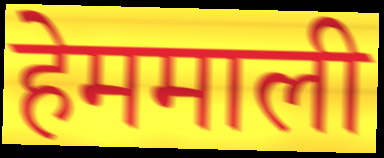
हेममाली